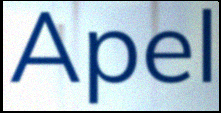
Apel